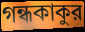
গন্ধকাকুর